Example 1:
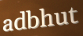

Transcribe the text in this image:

adbhut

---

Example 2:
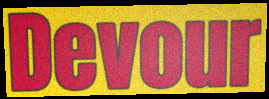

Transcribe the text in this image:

Devour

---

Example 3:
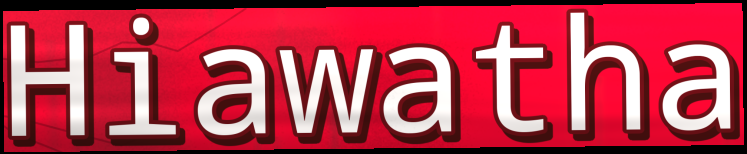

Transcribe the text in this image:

Hiawatha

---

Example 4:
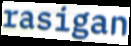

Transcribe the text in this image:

rasigan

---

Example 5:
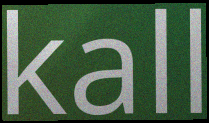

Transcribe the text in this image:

kall